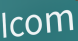
Icom